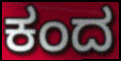
ಕಂದ